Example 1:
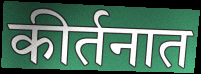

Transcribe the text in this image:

कीर्तनात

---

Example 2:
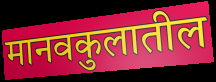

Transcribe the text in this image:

मानवकुलातील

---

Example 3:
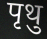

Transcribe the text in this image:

पृथु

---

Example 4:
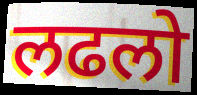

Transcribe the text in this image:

लढलो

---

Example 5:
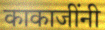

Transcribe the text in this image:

काकाजींनी